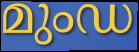
മുംഡ